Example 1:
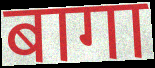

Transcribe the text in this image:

बागा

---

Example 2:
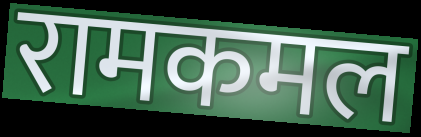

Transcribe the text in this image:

रामकमल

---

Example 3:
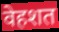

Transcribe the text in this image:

वेहशत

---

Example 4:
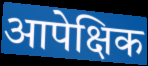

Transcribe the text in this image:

आपेक्षिक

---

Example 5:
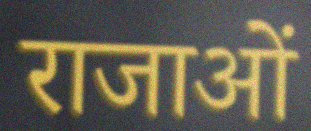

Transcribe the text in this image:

राजाओं